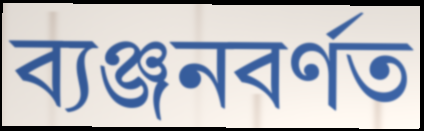
ব্যঞ্জনবৰ্ণত